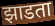
झाडता